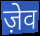
ज़ेव